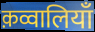
क़व्वालियाँ